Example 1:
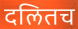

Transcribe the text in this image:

दलितच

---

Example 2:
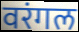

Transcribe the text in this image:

वरंगल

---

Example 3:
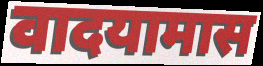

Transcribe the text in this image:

वादयामास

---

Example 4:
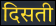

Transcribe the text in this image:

दिसती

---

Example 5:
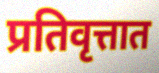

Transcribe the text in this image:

प्रतिवृत्तात